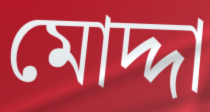
মোদ্দা